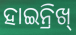
ହାଇନ୍ରିଖ୍